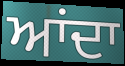
ਆਂਦਾ